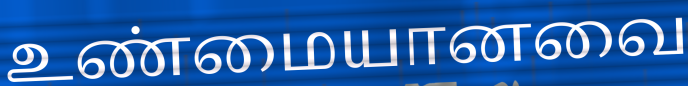
உண்மையானவை